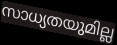
സാധ്യതയുമില്ല